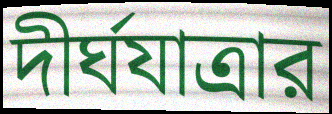
দীর্ঘযাত্রার